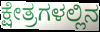
ಕ್ಷೇತ್ರಗಳಲ್ಲಿನ